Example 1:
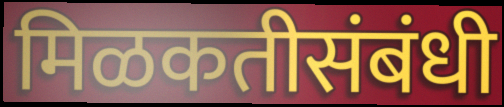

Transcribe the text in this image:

मिळकतीसंबंधी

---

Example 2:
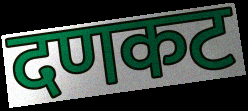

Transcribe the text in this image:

दणकट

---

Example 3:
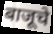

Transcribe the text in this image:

बाजूचे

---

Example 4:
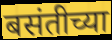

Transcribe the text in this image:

बसंतीच्या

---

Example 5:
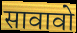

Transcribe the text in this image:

सावावो